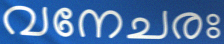
വനേചരഃ